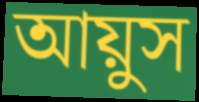
আয়ুস